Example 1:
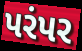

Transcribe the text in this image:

પરંપર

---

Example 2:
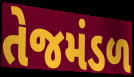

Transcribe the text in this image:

તેજમંડળ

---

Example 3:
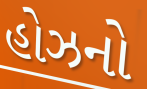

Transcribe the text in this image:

હોઝનો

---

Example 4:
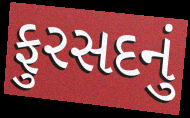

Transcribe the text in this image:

ફુરસદનું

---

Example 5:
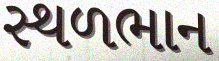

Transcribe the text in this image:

સ્થળભાન